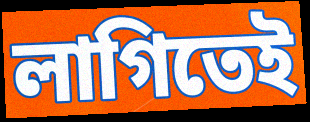
লাগিতেই